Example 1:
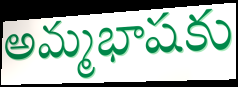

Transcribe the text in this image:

అమ్మభాషకు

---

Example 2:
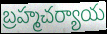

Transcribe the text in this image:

బ్రహ్మచర్యాయ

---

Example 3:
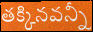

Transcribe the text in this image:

తక్కినవన్నీ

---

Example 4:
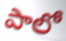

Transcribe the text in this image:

పాలో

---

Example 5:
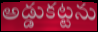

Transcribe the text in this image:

అడ్డుకట్టను